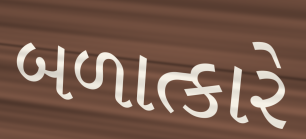
બળાત્કારે